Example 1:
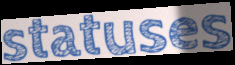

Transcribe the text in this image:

statuses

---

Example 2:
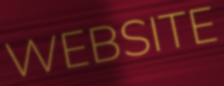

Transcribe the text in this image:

WEBSITE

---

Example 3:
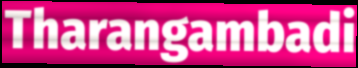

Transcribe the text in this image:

Tharangambadi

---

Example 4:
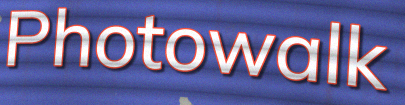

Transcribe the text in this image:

Photowalk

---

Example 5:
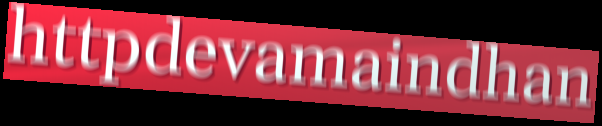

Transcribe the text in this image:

httpdevamaindhan